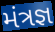
મંત્રજ્ઞ